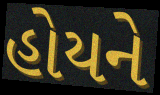
હોયને